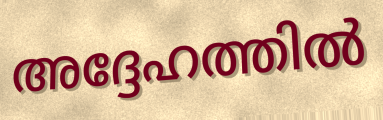
അദ്ദേഹത്തിൽ